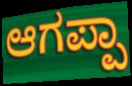
ಆಗಪ್ಪಾ